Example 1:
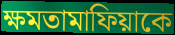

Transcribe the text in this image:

ক্ষমতামাফিয়াকে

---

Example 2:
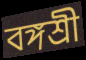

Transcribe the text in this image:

বঙ্গশ্রী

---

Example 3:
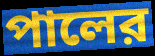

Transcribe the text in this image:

পালের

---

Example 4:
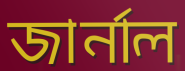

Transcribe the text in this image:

জার্নাল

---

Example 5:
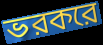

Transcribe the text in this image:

ভরকরে